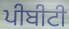
ਪੀਬੀਟੀ